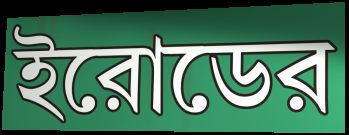
ইরোডের